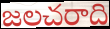
జలచరాది